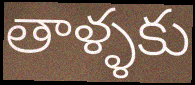
తాళ్ళకు